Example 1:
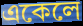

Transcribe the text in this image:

একেলে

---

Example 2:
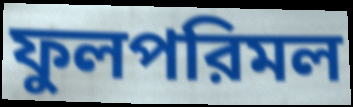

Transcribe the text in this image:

ফুলপরিমল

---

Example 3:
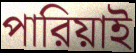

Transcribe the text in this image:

পারিয়াই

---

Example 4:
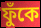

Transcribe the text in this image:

ফুঁকে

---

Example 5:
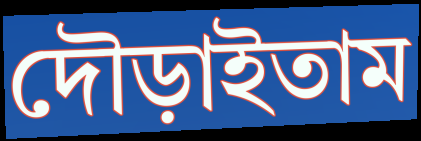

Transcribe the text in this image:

দৌড়াইতাম